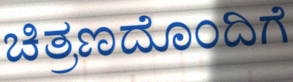
ಚಿತ್ರಣದೊಂದಿಗೆ